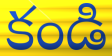
కండి